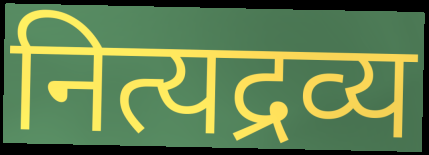
नित्यद्रव्य